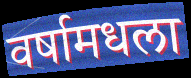
वर्षामधला